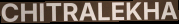
CHITRALEKHA